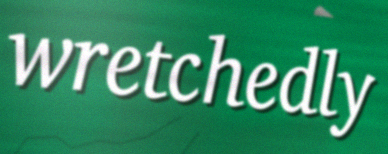
wretchedly